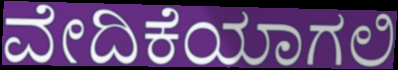
ವೇದಿಕೆಯಾಗಲಿ